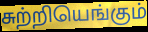
சுற்றியெங்கும்